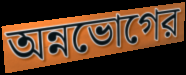
অন্নভোগের